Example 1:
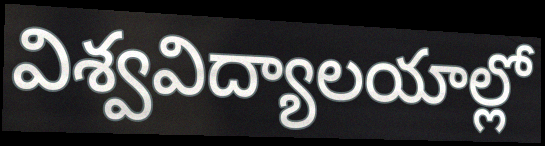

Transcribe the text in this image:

విశ్వవిద్యాలయాల్లో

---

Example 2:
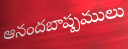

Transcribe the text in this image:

ఆనందబాష్పములు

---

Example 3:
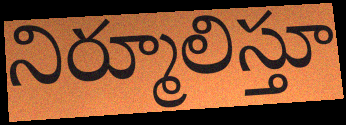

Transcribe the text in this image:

నిర్మూలిస్తూ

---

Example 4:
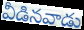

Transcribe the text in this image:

వీడినవాడు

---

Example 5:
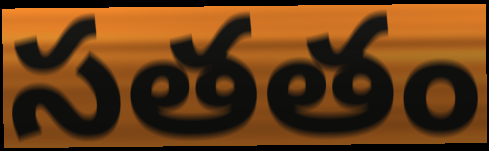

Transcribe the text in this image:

సతతం